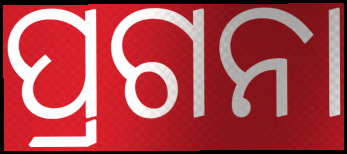
ପ୍ରଗନା